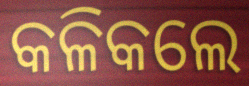
କଳିକଲେ